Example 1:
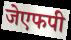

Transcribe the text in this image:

जेएफपी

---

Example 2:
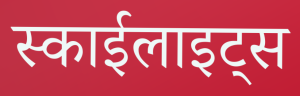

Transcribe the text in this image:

स्काईलाइट्स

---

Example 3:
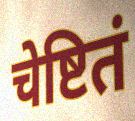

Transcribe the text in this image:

चेष्टितं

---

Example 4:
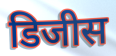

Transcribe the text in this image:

डिजीस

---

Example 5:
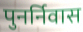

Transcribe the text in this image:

पुनर्निवास